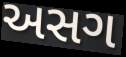
અસગ